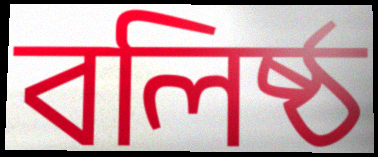
বলিষ্ঠ